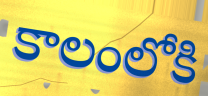
కాలంలోకి